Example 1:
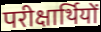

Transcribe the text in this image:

परीक्षार्थियों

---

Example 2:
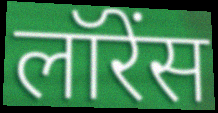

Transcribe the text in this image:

लॉरेंस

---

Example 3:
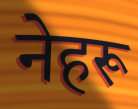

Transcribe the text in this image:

नेहरू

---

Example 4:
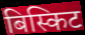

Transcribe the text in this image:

बिस्किट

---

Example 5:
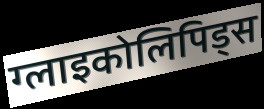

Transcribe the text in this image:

ग्लाइकोलिपिड्स